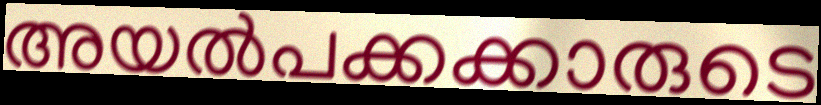
അയൽപക്കക്കാരുടെ